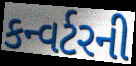
કન્વર્ટરની